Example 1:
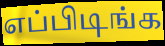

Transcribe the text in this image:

எப்பிடிங்க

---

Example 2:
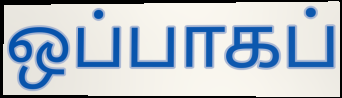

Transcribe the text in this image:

ஒப்பாகப்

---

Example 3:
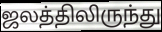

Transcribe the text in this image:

ஜலத்திலிருந்து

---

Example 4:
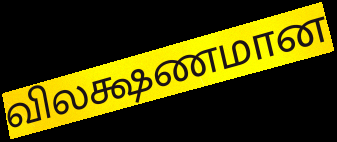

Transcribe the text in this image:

விலக்ஷணமான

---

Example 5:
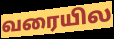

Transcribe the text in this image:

வரையில